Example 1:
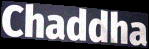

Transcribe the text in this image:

Chaddha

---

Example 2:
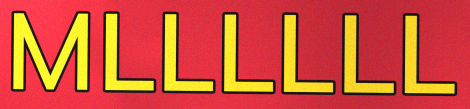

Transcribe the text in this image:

MLLLLLL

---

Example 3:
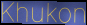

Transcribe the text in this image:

Khukon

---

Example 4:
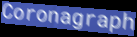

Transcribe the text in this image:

Coronagraph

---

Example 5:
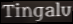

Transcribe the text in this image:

Tingalu